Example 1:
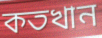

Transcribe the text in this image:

কতখান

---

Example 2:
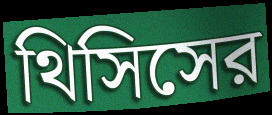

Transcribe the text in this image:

থিসিসের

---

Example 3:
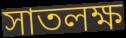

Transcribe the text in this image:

সাতলক্ষ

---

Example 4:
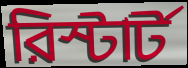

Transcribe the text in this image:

রিস্টার্ট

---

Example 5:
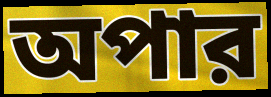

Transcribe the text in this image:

অপার